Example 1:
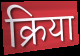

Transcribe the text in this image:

क्रिया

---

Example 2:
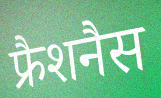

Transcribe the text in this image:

फ्रैशनैस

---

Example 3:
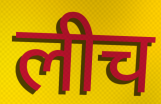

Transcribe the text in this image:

लीच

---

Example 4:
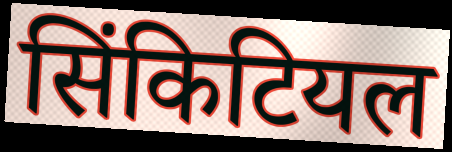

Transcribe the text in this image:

सिंकिटियल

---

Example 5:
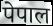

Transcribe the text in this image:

पेपाल